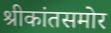
श्रीकांतसमोर